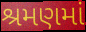
શ્રમણમાં